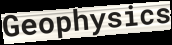
Geophysics